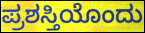
ಪ್ರಶಸ್ತಿಯೊಂದು